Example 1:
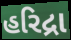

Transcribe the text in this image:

હરિદ્રા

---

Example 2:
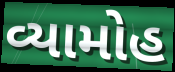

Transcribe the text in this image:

વ્યામોહ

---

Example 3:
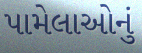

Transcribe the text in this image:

પામેલાઓનું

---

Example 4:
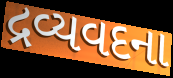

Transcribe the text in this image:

દ્રવ્યવદના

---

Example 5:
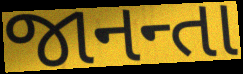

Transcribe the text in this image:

જાનન્તા